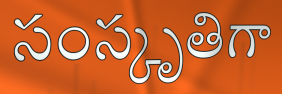
సంస్కృతిగా